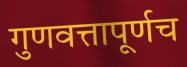
गुणवत्तापूर्णच